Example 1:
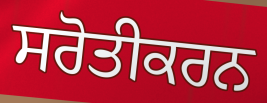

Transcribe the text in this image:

ਸਰੋਤੀਕਰਨ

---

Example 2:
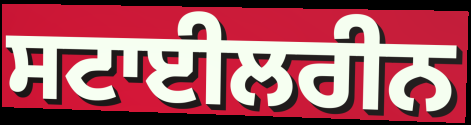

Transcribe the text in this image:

ਸਟਾਈਲਰੀਨ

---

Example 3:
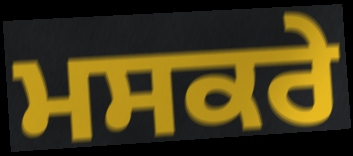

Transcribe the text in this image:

ਮਸਕਰੇ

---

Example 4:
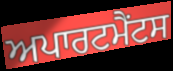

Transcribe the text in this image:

ਅਪਾਰਟਮੈਂਟਸ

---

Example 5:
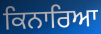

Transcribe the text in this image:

ਕਿਨਾਰਿਆ